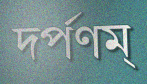
দর্পণম্